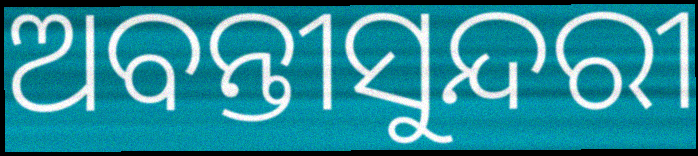
ଅବନ୍ତୀସୁନ୍ଦରୀ